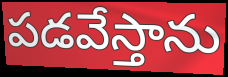
పడవేస్తాను